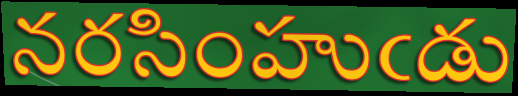
నరసింహుఁడు